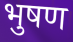
भुषण